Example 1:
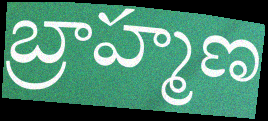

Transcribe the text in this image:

బ్రాహ్మణ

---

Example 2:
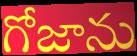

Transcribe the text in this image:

గోజాను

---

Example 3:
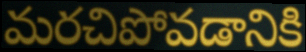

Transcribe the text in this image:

మరచిపోవడానికి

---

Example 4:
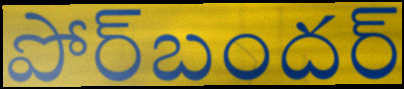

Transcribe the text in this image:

పోర్‌బందర్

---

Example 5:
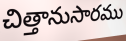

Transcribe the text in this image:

చిత్తానుసారము